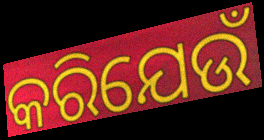
କରିଯେଉଁ